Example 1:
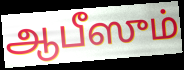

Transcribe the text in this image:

ஆபீஸும்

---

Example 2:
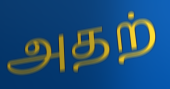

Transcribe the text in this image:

அதற்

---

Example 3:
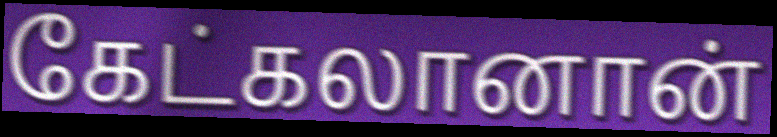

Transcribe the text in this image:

கேட்கலானான்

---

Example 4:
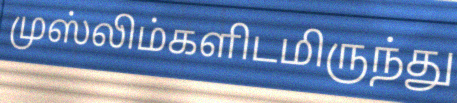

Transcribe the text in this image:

முஸ்லிம்களிடமிருந்து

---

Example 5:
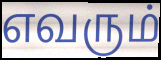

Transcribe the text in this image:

எவரும்